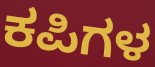
ಕಪಿಗಳ